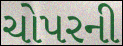
ચોપરની